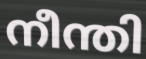
നീന്തി